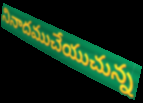
నినాదముచేయుచున్న